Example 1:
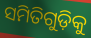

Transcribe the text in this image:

ସମିତିଗୁଡ଼ିକୁ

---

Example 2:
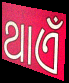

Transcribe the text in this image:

ଥାଏଁ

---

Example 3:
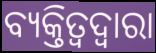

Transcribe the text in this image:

ବ୍ୟକ୍ତିତ୍ୱଦ୍ୱାରା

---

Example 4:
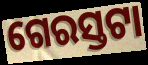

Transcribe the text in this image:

ଗେରସ୍ତଟା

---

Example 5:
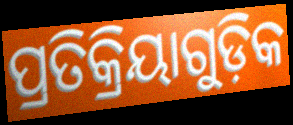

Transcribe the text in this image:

ପ୍ରତିକ୍ରିୟାଗୁଡ଼ିକ